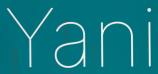
Yani